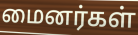
மைனர்கள்